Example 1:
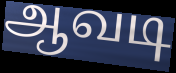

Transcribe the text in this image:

ஆவடி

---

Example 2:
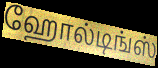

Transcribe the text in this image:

ஹோல்டிங்ஸ்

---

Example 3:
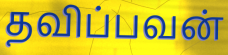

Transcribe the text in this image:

தவிப்பவன்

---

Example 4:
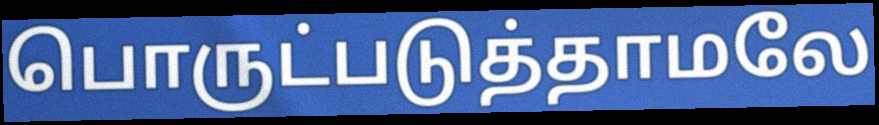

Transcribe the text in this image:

பொருட்படுத்தாமலே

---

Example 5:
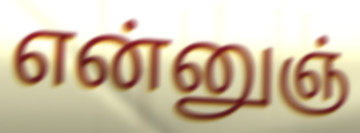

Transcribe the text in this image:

என்னுஞ்